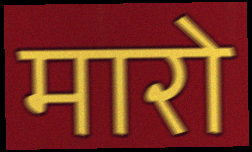
मारो